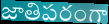
జాతిపరంగా